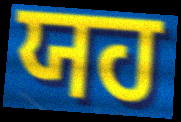
ਯਹ